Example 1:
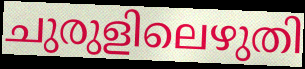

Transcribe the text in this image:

ചുരുളിലെഴുതി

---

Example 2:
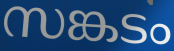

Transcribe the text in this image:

സങ്കടം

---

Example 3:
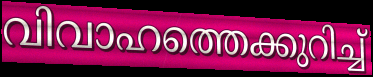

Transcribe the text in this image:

വിവാഹത്തെക്കുറിച്ച്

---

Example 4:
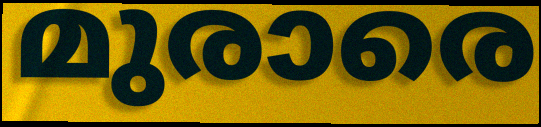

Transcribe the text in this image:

മുരാരെ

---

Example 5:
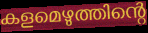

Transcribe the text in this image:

കളമെഴുത്തിന്റെ